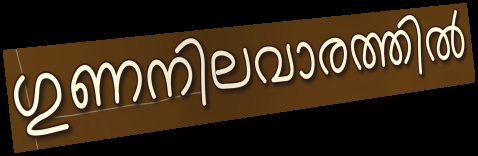
ഗുണനിലവാരത്തിൽ